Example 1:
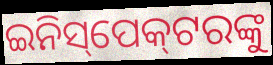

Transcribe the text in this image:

ଇନିସ୍‌ପେକ୍‍ଟରଙ୍କୁ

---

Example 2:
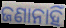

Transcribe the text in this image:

ଜଣାନାହିଁ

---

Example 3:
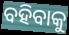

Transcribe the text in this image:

ବହିବାକୁ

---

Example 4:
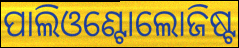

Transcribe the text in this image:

ପାଲିଓଣ୍ଟୋଲୋଜିଷ୍ଟ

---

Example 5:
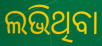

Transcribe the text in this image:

ଲଭିଥିବା